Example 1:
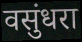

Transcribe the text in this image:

वसुंधरा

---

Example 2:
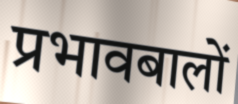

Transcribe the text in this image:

प्रभावबालों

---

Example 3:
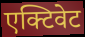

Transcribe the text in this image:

एक्टिवेट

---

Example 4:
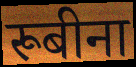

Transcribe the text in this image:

रूबीना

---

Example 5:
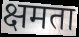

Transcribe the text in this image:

क्षमता